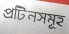
প্ৰটিনসমূহ